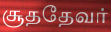
சூததேவர்